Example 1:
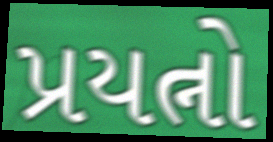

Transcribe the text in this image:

પ્રયત્નો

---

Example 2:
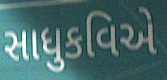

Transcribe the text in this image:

સાધુકવિએ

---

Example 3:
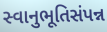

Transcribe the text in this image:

સ્વાનુભૂતિસંપન્ન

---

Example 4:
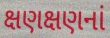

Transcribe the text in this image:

ક્ષણક્ષણનાં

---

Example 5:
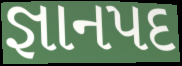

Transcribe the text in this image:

જ્ઞાનપદ